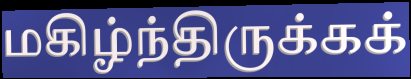
மகிழ்ந்திருக்கக்